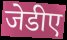
जेडीए